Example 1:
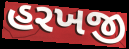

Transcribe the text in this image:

હરખજી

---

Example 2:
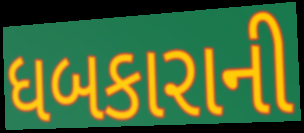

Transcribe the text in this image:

ધબકારાની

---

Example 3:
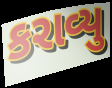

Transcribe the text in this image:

કરાવ્યુ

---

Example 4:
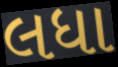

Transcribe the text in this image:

લધા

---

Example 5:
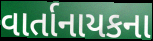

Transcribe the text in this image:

વાર્તાનાયકના